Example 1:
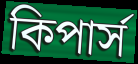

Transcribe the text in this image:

কিপার্স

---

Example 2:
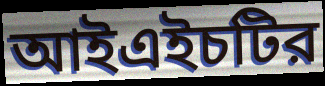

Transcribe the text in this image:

আইএইচটির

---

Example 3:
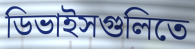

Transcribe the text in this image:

ডিভাইসগুলিতে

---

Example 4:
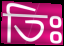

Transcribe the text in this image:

তিঃ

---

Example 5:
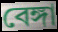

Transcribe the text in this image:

বেঙ্গা